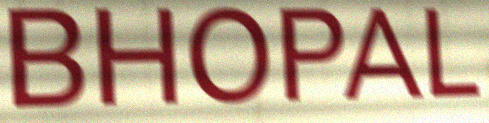
BHOPAL